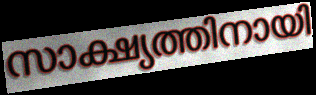
സാക്ഷ്യത്തിനായി